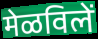
मेळविलें